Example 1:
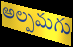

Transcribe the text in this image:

అల్పమగు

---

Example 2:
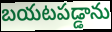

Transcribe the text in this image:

బయటపడ్డాను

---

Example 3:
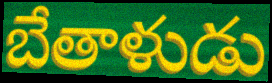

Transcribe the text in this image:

బేతాళుడు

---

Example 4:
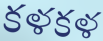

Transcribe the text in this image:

కళకళ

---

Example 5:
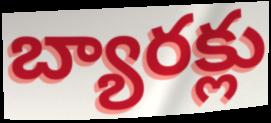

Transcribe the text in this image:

బ్యారక్లు